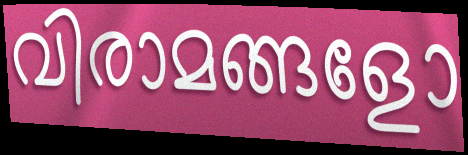
വിരാമങ്ങളോ